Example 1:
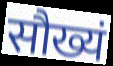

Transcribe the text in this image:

सौख्यं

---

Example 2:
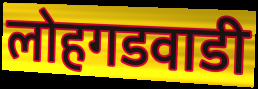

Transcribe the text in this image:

लोहगडवाडी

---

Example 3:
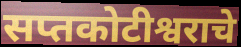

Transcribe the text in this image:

सप्तकोटीश्वराचे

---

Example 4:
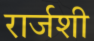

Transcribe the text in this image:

रार्जशी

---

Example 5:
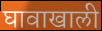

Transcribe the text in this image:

घावाखाली